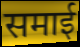
समाई